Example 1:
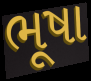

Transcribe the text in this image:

ભૂષા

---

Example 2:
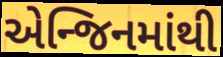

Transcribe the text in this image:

એન્જિનમાંથી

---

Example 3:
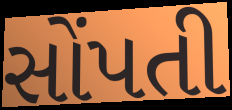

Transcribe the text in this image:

સોંપતી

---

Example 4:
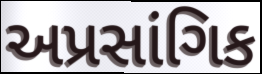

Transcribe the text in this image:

અપ્રસાંગિક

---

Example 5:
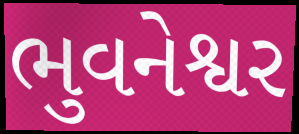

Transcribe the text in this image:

ભુવનેશ્વર